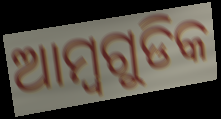
ଆମ୍ବଗୁଡିକ